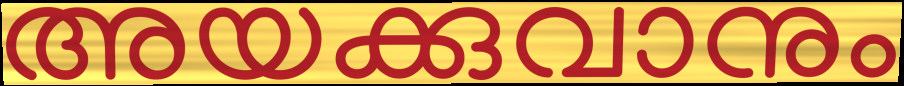
അയക്കുവാനും